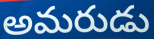
అమరుడు